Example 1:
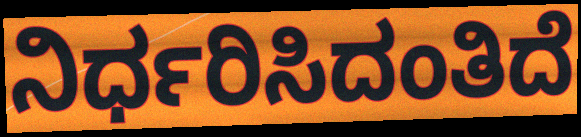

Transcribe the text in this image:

ನಿರ್ಧರಿಸಿದಂತಿದೆ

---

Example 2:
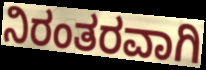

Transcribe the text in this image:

ನಿರಂತರವಾಗಿ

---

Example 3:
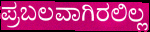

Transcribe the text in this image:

ಪ್ರಬಲವಾಗಿರಲಿಲ್ಲ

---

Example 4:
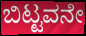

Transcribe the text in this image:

ಬಿಟ್ಟವನೇ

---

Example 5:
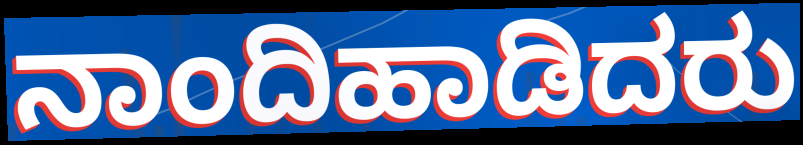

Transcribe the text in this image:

ನಾಂದಿಹಾಡಿದರು